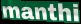
manthi